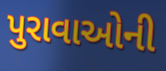
પુરાવાઓની